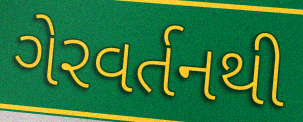
ગેરવર્તનથી